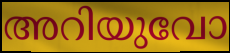
അറിയുവോ